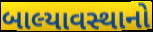
બાલ્યાવસ્થાનો